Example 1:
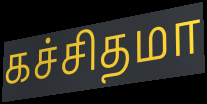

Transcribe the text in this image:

கச்சிதமா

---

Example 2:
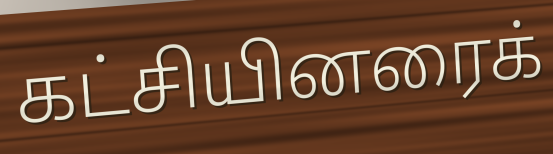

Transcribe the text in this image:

கட்சியினரைக்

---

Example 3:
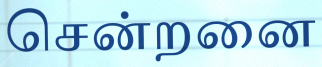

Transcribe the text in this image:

சென்றனை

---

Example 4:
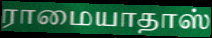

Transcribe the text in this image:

ராமையாதாஸ்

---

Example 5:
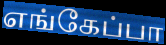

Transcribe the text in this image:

எங்கேப்பா